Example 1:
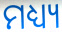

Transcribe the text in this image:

ମଧ୍ୟ୍ୟ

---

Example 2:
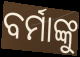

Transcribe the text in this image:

ବର୍ମାଙ୍କୁ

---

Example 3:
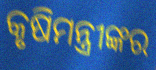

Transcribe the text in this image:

କୃଷିମନ୍ତ୍ରୀଙ୍କର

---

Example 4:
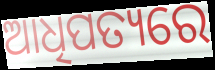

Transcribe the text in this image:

ଆଧିପତ୍ୟରେ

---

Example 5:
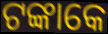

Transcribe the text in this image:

ଟଙ୍କାକେ